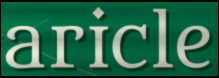
aricle